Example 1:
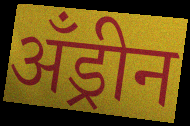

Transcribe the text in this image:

अँड्रीन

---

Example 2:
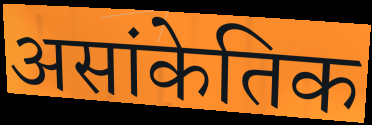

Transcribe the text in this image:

असांकेतिक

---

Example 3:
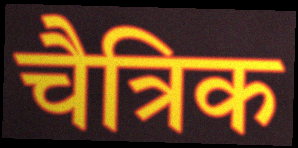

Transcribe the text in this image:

चैत्रिक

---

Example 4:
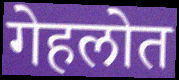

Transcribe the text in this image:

गेहलोत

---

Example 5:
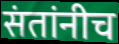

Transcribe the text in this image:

संतांनीच